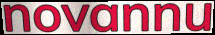
novannu